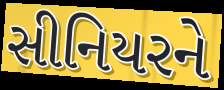
સીનિયરને